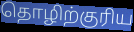
தொழிற்குரிய